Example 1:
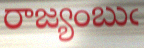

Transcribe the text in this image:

రాజ్యంబుఁ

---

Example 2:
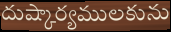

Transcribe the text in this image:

దుష్కార్యములకును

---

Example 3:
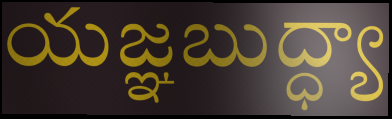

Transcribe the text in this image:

యజ్ఞబుద్ధ్యా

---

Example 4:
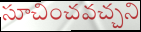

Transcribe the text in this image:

సూచించవచ్చని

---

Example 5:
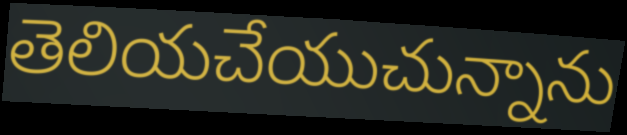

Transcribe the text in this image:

తెలియచేయుచున్నాను